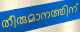
തീരുമാനത്തിന്